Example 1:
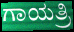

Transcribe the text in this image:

ಗಾಯತ್ರಿ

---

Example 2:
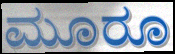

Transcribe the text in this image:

ಮೂರೂ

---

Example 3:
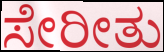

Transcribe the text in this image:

ಸೇರೀತು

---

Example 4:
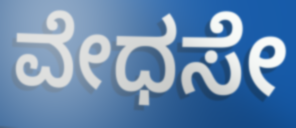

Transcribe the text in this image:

ವೇಧಸೇ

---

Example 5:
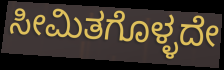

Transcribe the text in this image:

ಸೀಮಿತಗೊಳ್ಳದೇ